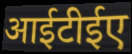
आईटीईए